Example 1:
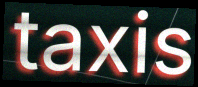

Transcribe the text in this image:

taxis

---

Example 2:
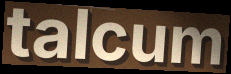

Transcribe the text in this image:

talcum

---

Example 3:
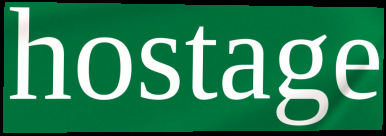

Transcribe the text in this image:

hostage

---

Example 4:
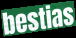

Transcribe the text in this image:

bestias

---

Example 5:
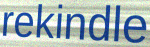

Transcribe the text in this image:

rekindle